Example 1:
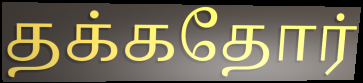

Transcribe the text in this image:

தக்கதோர்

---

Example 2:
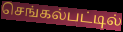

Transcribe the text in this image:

செங்கல்பட்டில்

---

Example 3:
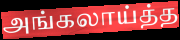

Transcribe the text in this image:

அங்கலாய்த்த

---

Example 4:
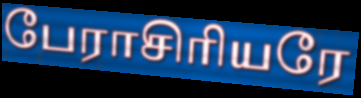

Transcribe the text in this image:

பேராசிரியரே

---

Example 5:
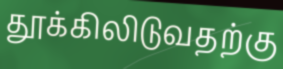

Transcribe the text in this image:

தூக்கிலிடுவதற்கு